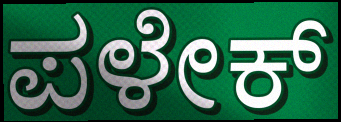
ಪಳೇಕ್